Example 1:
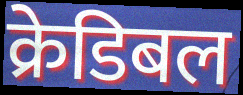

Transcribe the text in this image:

क्रेडिबल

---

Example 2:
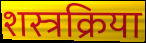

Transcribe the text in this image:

शस्त्रक्रिया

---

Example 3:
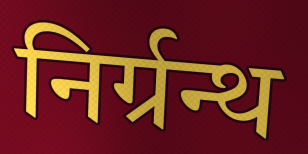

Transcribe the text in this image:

निर्ग्रन्थ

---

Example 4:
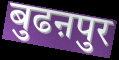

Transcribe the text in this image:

बुढऩपुर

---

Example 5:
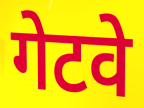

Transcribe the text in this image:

गेटवे